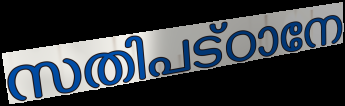
സതിപട്ഠാനേ